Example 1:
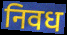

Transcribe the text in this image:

निवध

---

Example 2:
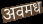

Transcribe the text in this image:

अवमध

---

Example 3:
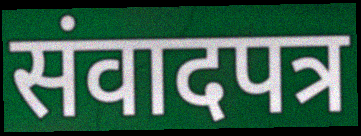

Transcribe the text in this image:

संवादपत्र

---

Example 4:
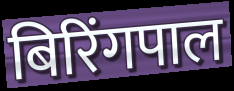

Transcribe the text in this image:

बिरिंगपाल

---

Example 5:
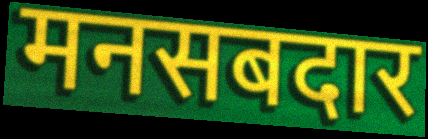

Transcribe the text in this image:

मनसबदार